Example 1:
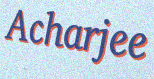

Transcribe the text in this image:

Acharjee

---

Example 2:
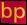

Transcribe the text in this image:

bp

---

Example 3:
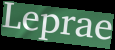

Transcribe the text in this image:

Leprae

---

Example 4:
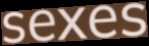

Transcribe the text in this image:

sexes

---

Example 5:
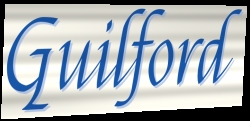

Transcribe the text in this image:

Guilford